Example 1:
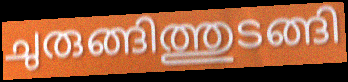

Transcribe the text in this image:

ചുരുങ്ങിത്തുടങ്ങി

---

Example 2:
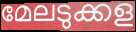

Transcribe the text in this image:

മേലടുക്കള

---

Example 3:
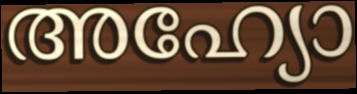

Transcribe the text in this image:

അഹ്യോ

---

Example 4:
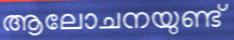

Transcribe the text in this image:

ആലോചനയുണ്ട്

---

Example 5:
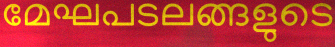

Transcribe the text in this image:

മേഘപടലങ്ങളുടെ